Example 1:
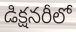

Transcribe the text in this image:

డిక్షనరీలో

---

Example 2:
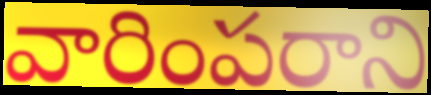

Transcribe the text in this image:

వారింపరాని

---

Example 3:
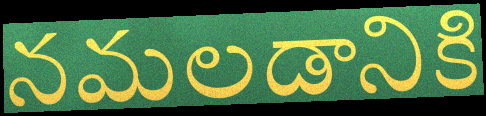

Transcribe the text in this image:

నమలడానికి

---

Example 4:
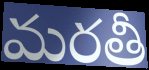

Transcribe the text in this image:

మరతీ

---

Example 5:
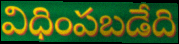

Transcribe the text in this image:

విధింపబడేది